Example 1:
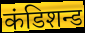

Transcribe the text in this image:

कंडिशन्ड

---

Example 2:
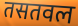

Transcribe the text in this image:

तसतवल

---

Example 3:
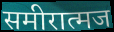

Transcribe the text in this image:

समीरात्मज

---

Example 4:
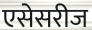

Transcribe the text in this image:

एसेसरीज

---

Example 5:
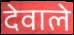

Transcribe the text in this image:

देवाले